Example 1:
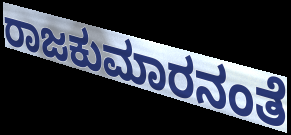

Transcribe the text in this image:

ರಾಜಕುಮಾರನಂತೆ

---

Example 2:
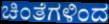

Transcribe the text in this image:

ಚಿಂತೆಗಳಿಂದ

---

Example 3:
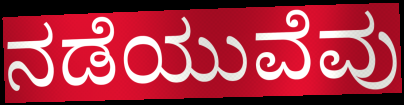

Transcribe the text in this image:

ನಡೆಯುವೆವು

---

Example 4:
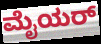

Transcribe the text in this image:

ಮೈಯರ್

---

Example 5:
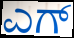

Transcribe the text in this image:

ಎಗ್